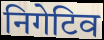
निगेटिव